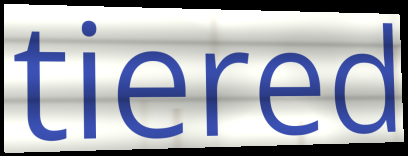
tiered